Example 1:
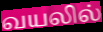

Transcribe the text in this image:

வயலில்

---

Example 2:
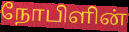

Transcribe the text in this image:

நோபிளின்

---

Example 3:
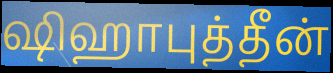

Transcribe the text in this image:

ஷிஹாபுத்தீன்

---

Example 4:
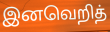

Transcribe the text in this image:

இனவெறித்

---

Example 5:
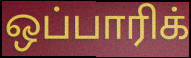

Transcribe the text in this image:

ஒப்பாரிக்